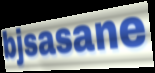
bjsasane